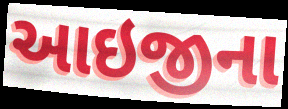
આઇજીના